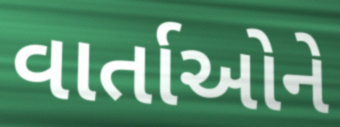
વાર્તાઓને